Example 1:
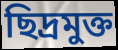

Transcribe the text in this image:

ছিদ্রমুক্ত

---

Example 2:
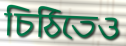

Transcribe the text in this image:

চিঠিতেও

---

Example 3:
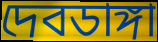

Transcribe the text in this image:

দেবডাঙ্গা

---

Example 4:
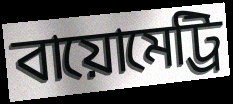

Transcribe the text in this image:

বায়োমেট্রি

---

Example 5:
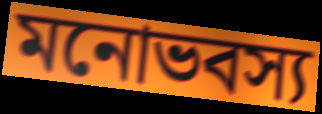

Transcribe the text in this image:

মনোভবস্য